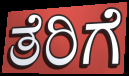
ತೆರಿಗೆ